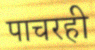
पाचरही